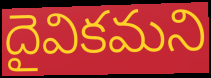
దైవికమని